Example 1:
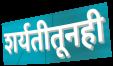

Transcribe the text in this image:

शर्यतीतूनही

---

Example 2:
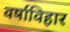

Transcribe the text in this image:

वर्षाविहार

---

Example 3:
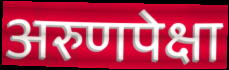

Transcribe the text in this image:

अरुणपेक्षा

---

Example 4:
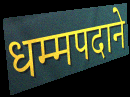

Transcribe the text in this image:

धम्मपदाने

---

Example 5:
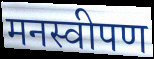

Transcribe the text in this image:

मनस्वीपण